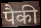
पैकी